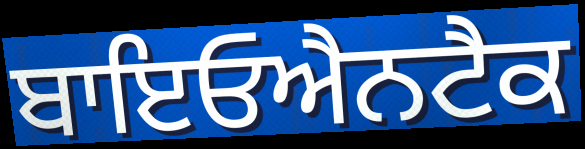
ਬਾਇਓਐਨਟੈਕ